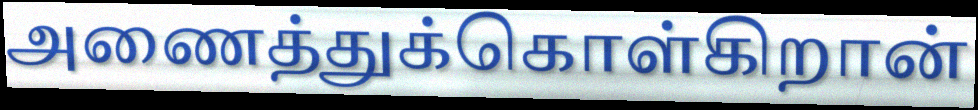
அணைத்துக்கொள்கிறான்